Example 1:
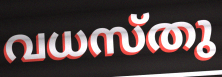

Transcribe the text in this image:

വധസ്തു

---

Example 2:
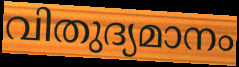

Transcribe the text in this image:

വിതുദ്യമാനം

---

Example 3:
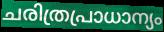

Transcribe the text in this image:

ചരിത്രപ്രാധാന്യം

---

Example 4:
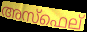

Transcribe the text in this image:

അസ്ഫെല്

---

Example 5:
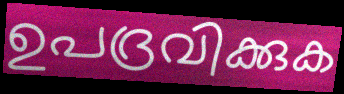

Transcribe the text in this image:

ഉപദ്രവിക്കുക